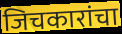
जिचकारांचा